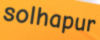
solhapur